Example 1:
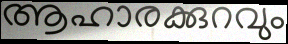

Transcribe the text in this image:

ആഹാരക്കുറവും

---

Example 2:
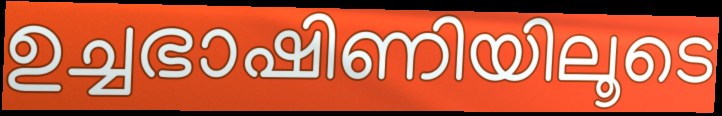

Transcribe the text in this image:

ഉച്ചഭാഷിണിയിലൂടെ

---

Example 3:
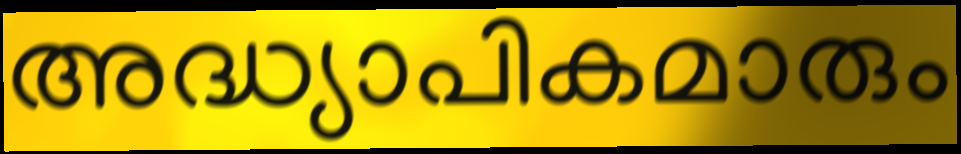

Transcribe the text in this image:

അദ്ധ്യാപികമാരും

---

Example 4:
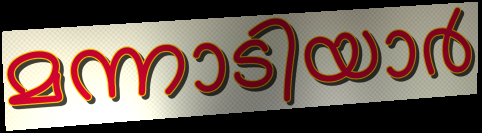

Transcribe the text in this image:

മന്നാടിയാർ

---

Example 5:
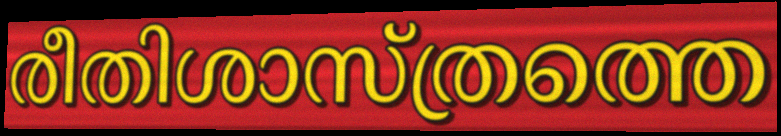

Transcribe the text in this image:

രീതിശാസ്ത്രത്തെ